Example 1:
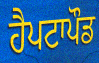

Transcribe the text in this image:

ਹੈਪਟਾਪੌਡ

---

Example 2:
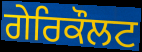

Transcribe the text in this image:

ਗੇਰਿਕੌਲਟ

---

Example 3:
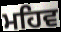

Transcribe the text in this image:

ਮਹਿਵ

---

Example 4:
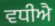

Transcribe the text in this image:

ਵਧੀਐ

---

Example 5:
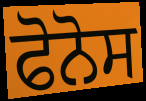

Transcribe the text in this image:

ਫੋਨੋਸ